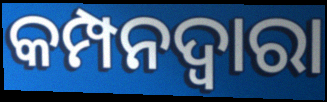
କମ୍ପନଦ୍ୱାରା